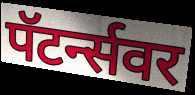
पॅटर्न्सवर